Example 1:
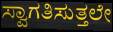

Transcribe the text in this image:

ಸ್ವಾಗತಿಸುತ್ತಲೇ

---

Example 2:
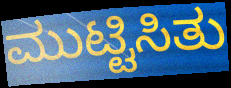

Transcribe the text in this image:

ಮುಟ್ಟಿಸಿತು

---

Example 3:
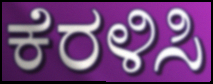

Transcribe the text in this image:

ಕೆರಳಿಸಿ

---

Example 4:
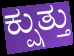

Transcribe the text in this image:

ಕ್ಷುತ್ತು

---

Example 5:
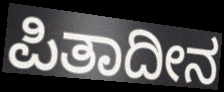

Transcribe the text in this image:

ಪಿತಾದೀನ